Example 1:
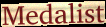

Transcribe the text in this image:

Medalist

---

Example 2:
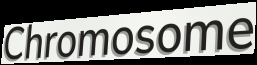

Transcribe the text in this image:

Chromosome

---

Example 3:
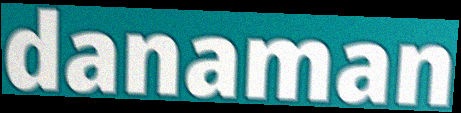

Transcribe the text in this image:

danaman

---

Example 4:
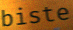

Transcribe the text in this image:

biste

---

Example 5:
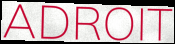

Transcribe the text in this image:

ADROIT